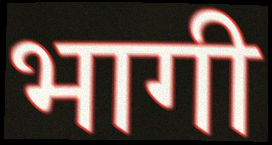
भागी